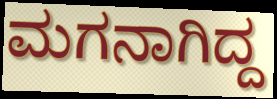
ಮಗನಾಗಿದ್ದ